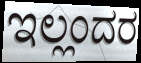
ಇಲ್ಲಂದರ